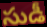
సుడీ